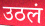
उठलं